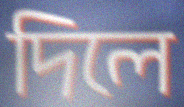
দিলে